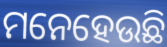
ମନେହେଉଛି